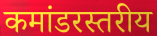
कमांडरस्तरीय